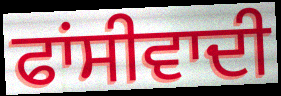
ਫਾਂਸੀਵਾਦੀ